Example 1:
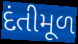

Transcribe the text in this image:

દંતીમૂળ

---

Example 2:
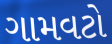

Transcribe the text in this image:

ગામવટો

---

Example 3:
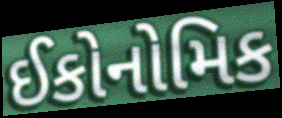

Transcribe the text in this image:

ઈકોનોમિક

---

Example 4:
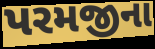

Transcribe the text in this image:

પરમજીના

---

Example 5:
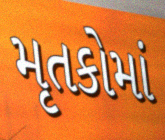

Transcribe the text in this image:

મૃતકોમાં